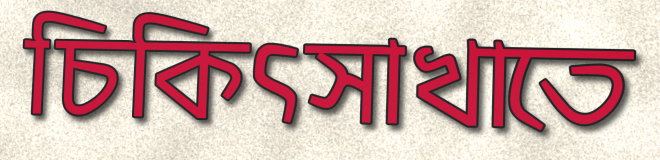
চিকিৎসাখাতে